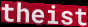
theist